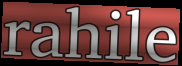
rahile